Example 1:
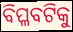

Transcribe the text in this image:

ବିପ୍ଳବଟିକୁ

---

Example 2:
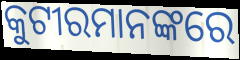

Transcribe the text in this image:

କୁଟୀରମାନଙ୍କରେ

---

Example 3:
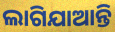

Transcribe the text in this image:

ଲାଗିଯାଆନ୍ତି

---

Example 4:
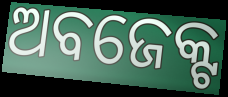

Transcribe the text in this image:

ଅବଜେକ୍ଟ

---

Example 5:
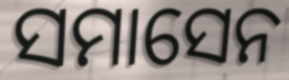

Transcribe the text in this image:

ସମାସେନ